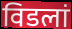
विडलां